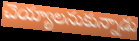
చెయ్యాలనుకున్నాడు